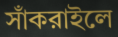
সাঁকরাইলে